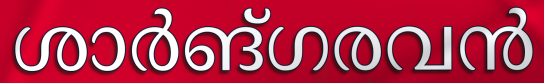
ശാർങ്ഗരവൻ